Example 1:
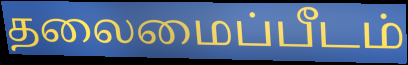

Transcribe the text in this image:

தலைமைப்பீடம்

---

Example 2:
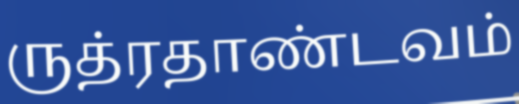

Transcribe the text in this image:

ருத்ரதாண்டவம்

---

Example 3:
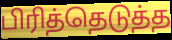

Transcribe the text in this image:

பிரித்தெடுத்த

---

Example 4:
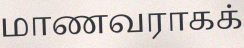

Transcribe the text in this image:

மாணவராகக்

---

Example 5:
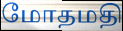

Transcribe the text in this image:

மோதமதி